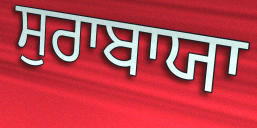
ਸੁਰਾਬਾਯਾ